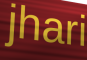
jhari